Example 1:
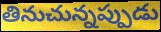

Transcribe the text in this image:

తినుచున్నప్పుడు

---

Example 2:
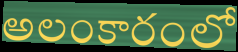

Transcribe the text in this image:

అలంకారంలో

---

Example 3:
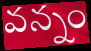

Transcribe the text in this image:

వన్నం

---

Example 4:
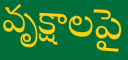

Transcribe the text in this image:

వృక్షాలపై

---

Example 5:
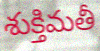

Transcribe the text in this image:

శుక్తిమతీ